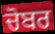
ਚੋਬਰ